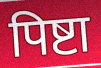
पिष्टा